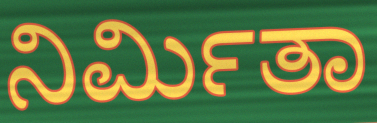
ನಿರ್ಮಿತಾ